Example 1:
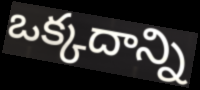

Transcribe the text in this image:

ఒక్కదాన్ని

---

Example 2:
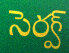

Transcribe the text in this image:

సెర్వ్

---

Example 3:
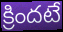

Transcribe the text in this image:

క్రిందటే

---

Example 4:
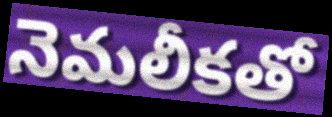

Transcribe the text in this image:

నెమలీకతో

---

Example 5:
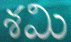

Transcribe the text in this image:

శమి